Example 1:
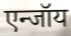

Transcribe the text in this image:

एन्जॉय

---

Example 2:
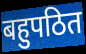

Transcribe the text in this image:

बहुपठित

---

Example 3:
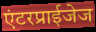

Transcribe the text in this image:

एंटरप्राईजेज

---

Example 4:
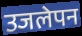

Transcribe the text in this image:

उजलेपन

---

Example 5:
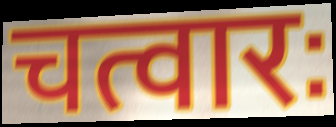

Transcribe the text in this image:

चत्वारः